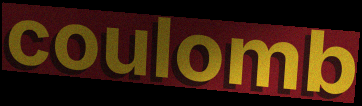
coulomb